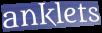
anklets